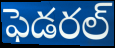
ఫెడరల్